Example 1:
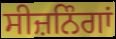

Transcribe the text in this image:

ਸੀਜ਼ਨਿੰਗਾਂ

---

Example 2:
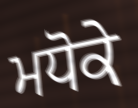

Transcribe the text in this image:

ਮਧੋਕੇ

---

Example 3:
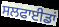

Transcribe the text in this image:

ਸਲਫਾਈਡਾਂ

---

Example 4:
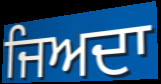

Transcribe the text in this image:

ਜਿਅਦਾ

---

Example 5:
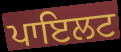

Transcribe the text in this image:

ਪਾਇਲਟ